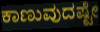
ಕಾಣುವುದಷ್ಟೇ